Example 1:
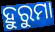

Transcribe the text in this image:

ହୁରୁମା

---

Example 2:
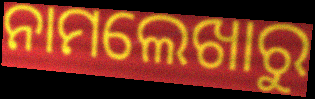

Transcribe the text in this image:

ନାମଲେଖାରୁ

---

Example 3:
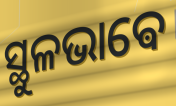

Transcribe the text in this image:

ସ୍ଥୁଳଭାଵେ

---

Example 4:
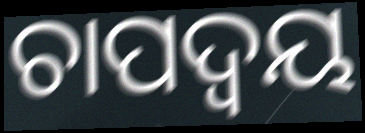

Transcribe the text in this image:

ଚାପଦ୍ଵୟ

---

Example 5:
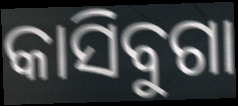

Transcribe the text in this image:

କାସିବୁଗା